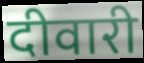
दीवारी